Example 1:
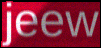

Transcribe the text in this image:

jeew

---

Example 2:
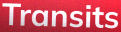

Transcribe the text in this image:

Transits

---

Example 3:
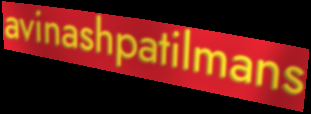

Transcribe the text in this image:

avinashpatilmans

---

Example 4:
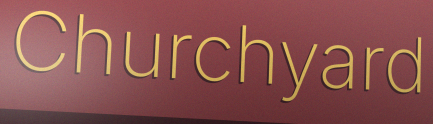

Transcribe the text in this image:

Churchyard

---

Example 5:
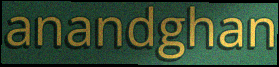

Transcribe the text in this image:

anandghan